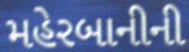
મહેરબાનીની